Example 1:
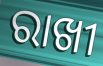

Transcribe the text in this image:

ରାଖୀ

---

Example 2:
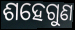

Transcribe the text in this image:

ଶହେଗୁଣ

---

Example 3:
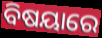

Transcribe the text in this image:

ବିଷୟାରେ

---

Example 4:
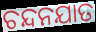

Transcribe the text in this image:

ଚନ୍ଦନଯାତ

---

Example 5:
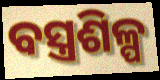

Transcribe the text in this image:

ବସ୍ତ୍ରଶିଳ୍ପ